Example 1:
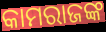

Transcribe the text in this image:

କାମରାଜଙ୍କ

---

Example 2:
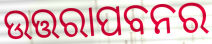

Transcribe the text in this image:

ଉତ୍ତରାପବନର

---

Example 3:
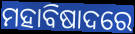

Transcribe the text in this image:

ମହାବିଷାଦରେ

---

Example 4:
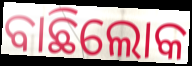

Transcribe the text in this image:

ବାଛିଲୋକ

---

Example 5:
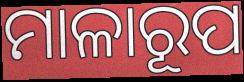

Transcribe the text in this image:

ମାଳାରୂପ